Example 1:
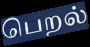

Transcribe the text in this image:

பெறல்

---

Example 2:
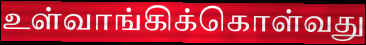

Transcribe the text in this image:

உள்வாங்கிக்கொள்வது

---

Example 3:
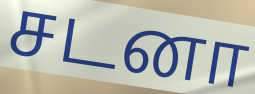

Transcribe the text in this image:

சடனா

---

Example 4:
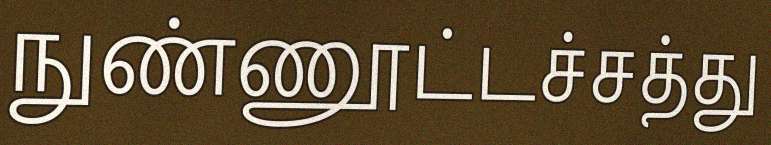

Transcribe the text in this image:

நுண்ணூட்டச்சத்து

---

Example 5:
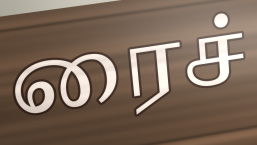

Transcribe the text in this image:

ரைச்